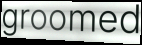
groomed